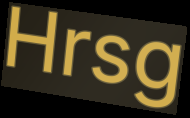
Hrsg